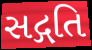
સદ્ગતિ